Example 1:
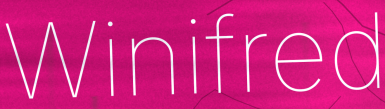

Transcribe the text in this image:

Winifred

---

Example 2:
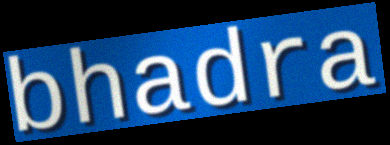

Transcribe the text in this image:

bhadra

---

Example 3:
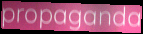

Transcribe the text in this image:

propaganda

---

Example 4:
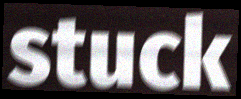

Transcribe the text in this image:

stuck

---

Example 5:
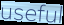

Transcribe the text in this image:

useful